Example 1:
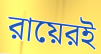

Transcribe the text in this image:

রায়েরই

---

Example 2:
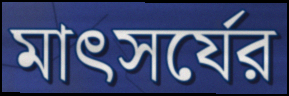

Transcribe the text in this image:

মাৎসর্যের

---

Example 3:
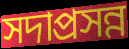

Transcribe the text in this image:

সদাপ্রসন্ন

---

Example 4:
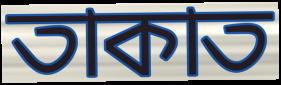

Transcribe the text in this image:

তাকাত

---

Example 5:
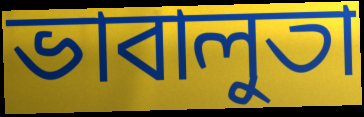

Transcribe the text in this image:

ভাবালুতা